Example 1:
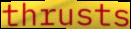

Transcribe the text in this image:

thrusts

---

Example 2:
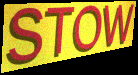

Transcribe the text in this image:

STOW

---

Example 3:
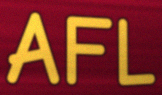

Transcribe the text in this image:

AFL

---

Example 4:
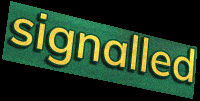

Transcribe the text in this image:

signalled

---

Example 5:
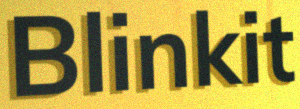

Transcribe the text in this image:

Blinkit